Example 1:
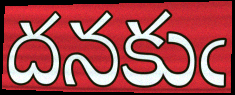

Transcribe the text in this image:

దనకుఁ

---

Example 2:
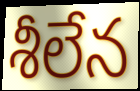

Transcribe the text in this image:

శీలేన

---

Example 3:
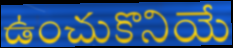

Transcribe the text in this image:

ఉంచుకొనియే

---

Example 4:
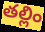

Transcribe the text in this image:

తల్లిం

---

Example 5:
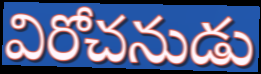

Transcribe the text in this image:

విరోచనుడు